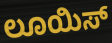
ಲೂಯಿಸ್